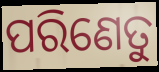
ପରିଣେତୁ